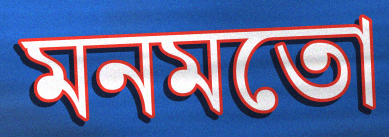
মনমতো